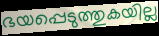
ഭയപ്പെടുത്തുകയില്ല